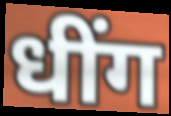
धींग